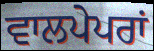
ਵਾਲਪੇਪਰਾਂ